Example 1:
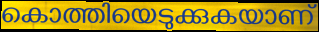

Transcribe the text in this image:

കൊത്തിയെടുക്കുകയാണ്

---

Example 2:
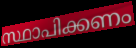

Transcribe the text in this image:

സ്ഥാപിക്കണം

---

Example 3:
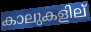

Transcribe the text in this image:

കാലുകളില്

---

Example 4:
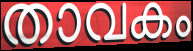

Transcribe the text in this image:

താവകം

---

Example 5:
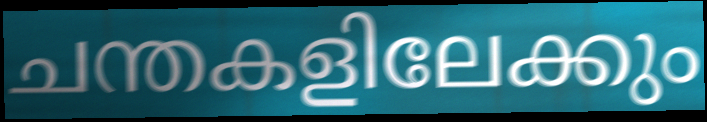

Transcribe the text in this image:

ചന്തകളിലേക്കും